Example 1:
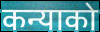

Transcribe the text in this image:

कन्याको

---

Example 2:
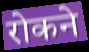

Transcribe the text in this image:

रोकने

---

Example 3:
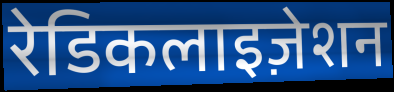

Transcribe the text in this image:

रेडिकलाइज़ेशन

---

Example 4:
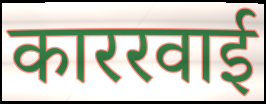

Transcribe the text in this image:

काररवाई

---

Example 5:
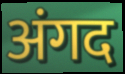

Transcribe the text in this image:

अंगद